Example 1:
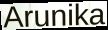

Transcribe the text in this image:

Arunika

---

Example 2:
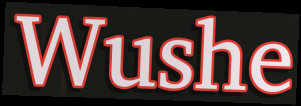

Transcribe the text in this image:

Wushe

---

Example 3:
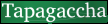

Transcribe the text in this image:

Tapagaccha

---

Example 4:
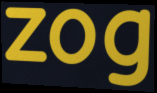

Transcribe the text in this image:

zog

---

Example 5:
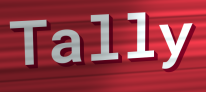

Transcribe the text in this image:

Tally